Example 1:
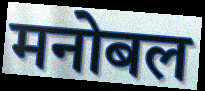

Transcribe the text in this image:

मनोबल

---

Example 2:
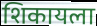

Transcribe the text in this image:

शिकायला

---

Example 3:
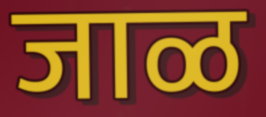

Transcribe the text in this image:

जाळ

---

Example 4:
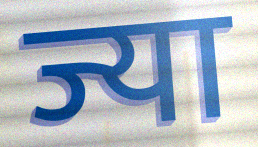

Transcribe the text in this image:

ज्या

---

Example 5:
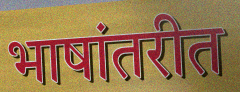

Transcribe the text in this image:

भाषांतरीत